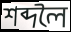
শব্দলৈ